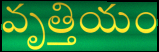
వృత్తియం